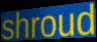
shroud